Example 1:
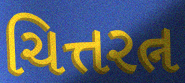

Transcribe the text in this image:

ચિત્તરત્ન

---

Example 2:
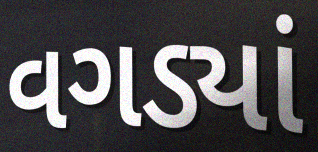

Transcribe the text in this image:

વગડ્યાં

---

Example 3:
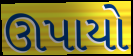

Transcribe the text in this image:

ઊપાયો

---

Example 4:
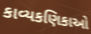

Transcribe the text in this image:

કાવ્યકણિકાઓ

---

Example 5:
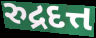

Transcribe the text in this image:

રુદ્રદત્ત